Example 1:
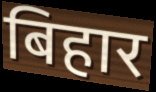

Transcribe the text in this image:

बिहार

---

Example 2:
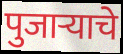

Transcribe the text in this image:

पुजाऱ्याचे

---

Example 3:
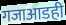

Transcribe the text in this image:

गजाआडही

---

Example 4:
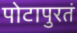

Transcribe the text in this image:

पोटापुरतं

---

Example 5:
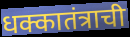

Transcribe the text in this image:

धक्कातंत्राची